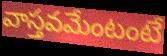
వాస్తవమేంటంటే